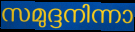
സമുദ്ദനിന്നാ